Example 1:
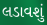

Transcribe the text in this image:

લડાવશું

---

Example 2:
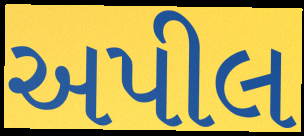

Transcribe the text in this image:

અપીલ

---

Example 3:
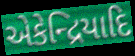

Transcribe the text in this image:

એકેન્દ્રિયાદિ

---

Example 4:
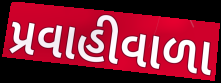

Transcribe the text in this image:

પ્રવાહીવાળા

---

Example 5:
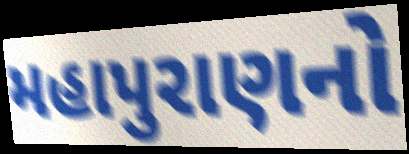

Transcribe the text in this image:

મહાપુરાણનો